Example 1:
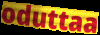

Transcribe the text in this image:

oduttaa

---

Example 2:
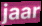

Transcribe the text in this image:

jaar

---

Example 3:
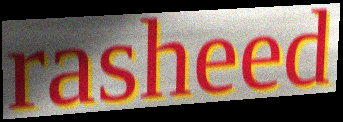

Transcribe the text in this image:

rasheed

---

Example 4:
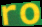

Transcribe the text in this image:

ro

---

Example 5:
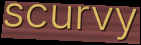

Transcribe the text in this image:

scurvy